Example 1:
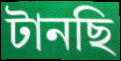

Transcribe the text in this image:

টানছি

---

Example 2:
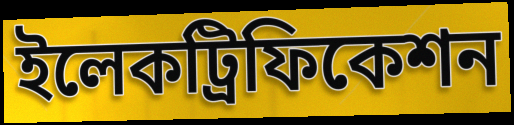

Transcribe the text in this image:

ইলেকট্রিফিকেশন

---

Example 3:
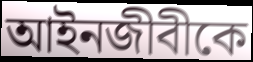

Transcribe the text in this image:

আইনজীবীকে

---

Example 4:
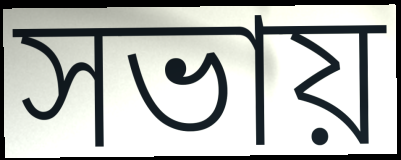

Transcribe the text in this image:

সভায়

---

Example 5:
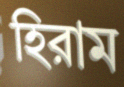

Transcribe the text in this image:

হিরাম